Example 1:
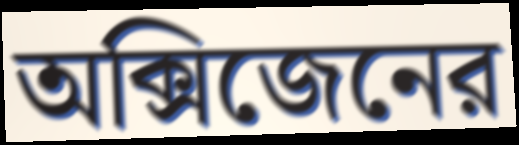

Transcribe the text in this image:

অক্সিজেনের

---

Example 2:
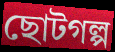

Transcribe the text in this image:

ছোটগল্প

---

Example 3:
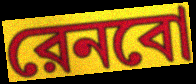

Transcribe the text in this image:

রেনবো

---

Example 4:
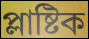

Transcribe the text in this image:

প্লাষ্টিক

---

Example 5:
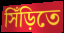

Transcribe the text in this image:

সিঁড়িতে